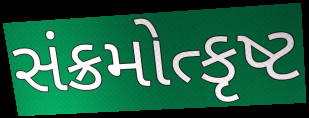
સંક્રમોત્કૃષ્ટ